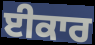
ਈਕਾਰ